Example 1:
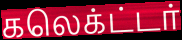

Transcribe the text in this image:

கலெக்ட்டர்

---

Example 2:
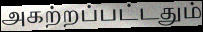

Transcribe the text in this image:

அகற்றப்பட்டதும்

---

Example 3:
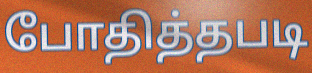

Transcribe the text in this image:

போதித்தபடி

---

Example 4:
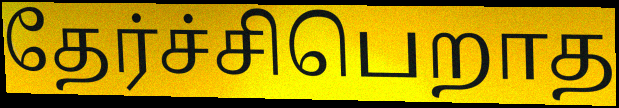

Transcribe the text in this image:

தேர்ச்சிபெறாத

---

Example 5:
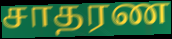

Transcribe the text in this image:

சாதரண